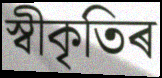
স্বীকৃতিৰ